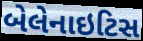
બેલેનાઇટિસ